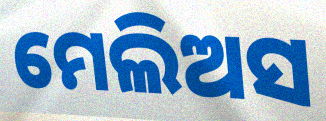
ମେଲିଅସ